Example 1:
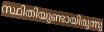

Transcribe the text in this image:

സ്ഥിതിയുണ്ടായിരുന്നു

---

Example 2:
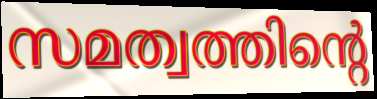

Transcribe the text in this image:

സമത്വത്തിന്റെ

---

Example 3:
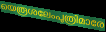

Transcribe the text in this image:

യെരൂശലേംപുത്രിമാരേ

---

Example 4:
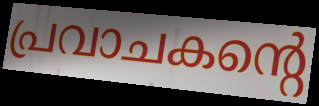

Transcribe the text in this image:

പ്രവാചകന്റെ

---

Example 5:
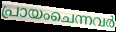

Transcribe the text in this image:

പ്രായംചെന്നവർ